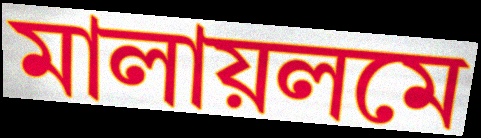
মালায়লমে